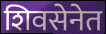
शिवसेनेत